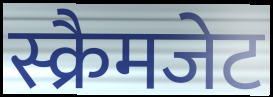
स्‍क्रैमजेट